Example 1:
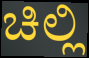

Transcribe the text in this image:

ಚಿಲ್ಲಿ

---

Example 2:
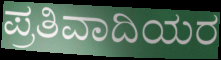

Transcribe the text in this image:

ಪ್ರತಿವಾದಿಯರ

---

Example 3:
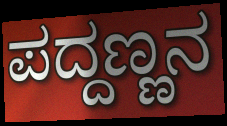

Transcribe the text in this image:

ಪದ್ದಣ್ಣನ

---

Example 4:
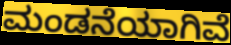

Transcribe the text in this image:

ಮಂಡನೆಯಾಗಿವೆ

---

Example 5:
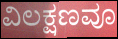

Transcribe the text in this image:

ವಿಲಕ್ಷಣವೂ